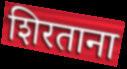
शिरताना